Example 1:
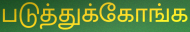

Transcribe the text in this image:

படுத்துக்கோங்க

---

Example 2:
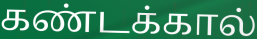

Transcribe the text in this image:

கண்டக்கால்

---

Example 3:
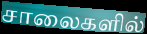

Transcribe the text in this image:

சாலைகளில்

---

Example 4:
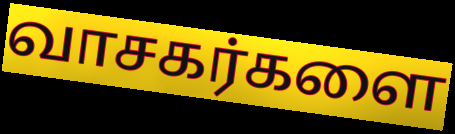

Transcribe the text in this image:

வாசகர்களை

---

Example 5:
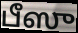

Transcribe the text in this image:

பீஸு